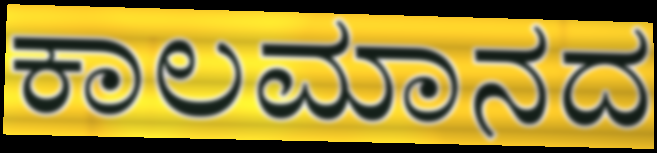
ಕಾಲಮಾನದ